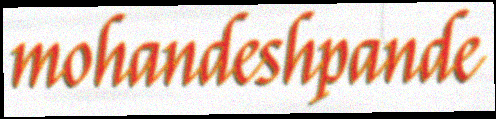
mohandeshpande